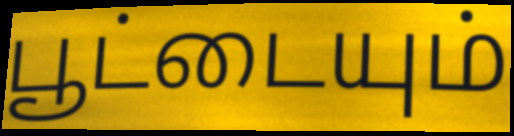
பூட்டையும்